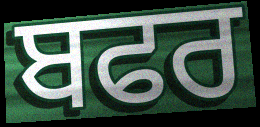
ਬਫਰ